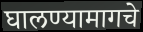
घालण्यामागचे